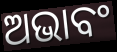
ଅଭାବଂ